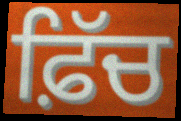
ਫ਼ਿੱਚ